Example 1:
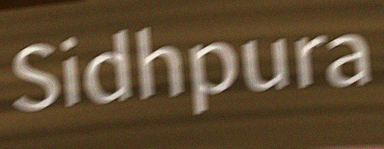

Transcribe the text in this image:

Sidhpura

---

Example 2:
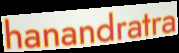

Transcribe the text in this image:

hanandratra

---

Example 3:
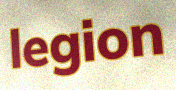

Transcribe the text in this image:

legion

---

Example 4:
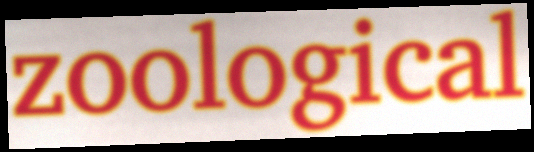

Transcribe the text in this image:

zoological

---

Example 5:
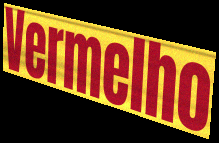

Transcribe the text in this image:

Vermelho